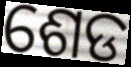
ଶେଡ